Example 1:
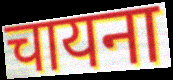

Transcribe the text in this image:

चायना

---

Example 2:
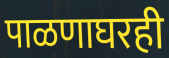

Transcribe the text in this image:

पाळणाघरही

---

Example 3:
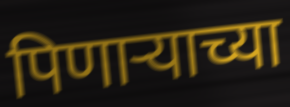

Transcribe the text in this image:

पिणाऱ्याच्या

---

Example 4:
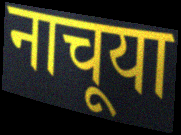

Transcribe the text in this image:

नाचूया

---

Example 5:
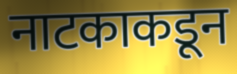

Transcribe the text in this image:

नाटकाकडून